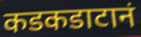
कडकडाटानं